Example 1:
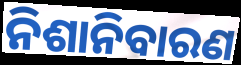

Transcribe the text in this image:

ନିଶାନିବାରଣ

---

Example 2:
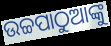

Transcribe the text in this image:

ଉଚ୍ଚପାଠୁଆଙ୍କୁ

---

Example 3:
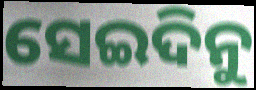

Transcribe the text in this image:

ସେଇଦିନୁ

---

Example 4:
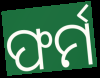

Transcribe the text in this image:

ଫର୍ମ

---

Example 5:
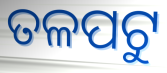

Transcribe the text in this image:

ତଳପଟୁ